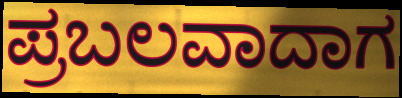
ಪ್ರಬಲವಾದಾಗ